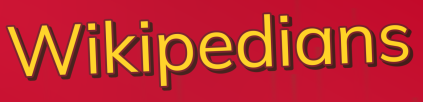
Wikipedians